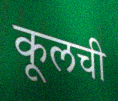
कूलची